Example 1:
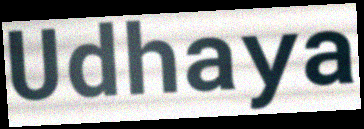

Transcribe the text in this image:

Udhaya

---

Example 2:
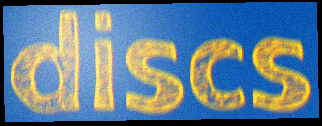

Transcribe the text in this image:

discs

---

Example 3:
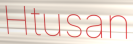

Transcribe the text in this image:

Htusan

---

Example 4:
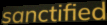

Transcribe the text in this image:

sanctified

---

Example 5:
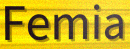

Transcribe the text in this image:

Femia